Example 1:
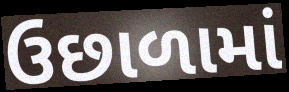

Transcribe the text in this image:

ઉછાળામાં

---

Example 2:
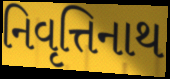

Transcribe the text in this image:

નિવૃત્તિનાથ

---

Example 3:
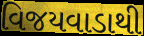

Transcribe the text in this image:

વિજયવાડાથી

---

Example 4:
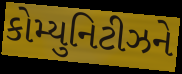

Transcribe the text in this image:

કોમ્યુનિટીઝને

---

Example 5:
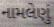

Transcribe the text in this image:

નામલેણું